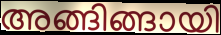
അങ്ങിങ്ങായി